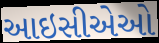
આઇસીએઓ